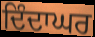
ਦਿੰਦਾਘਰ